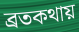
ব্রতকথায়